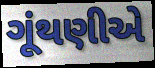
ગૂંથણીએ